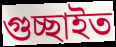
গুচ্ছাইত